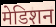
मेडिशन